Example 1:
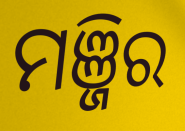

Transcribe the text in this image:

ମଞ୍ଜିର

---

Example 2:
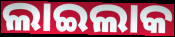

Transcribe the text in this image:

ଲାଇଲାକ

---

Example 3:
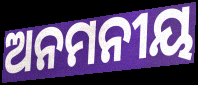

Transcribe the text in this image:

ଅନମନୀୟ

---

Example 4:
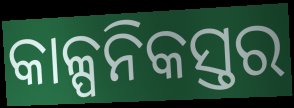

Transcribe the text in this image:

କାଳ୍ପନିକସ୍ତର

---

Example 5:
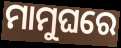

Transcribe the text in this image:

ମାମୁଘରେ